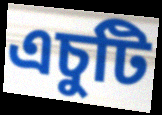
এচুটি